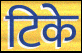
टिके